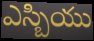
ఎస్బియు